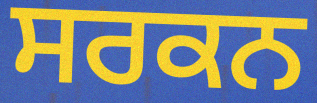
ਸਰਕਨ